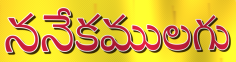
ననేకములగు